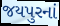
જયપુરનાં